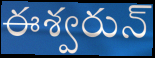
ఈశ్వరున్